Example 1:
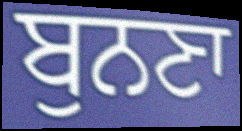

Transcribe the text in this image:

ਬੁਨਣਾ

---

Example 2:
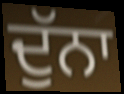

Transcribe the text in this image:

ਦੁੱਨਾ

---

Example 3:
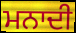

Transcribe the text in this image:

ਮਨਾਦੀ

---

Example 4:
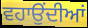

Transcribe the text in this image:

ਵਹਾਉਂਦੀਆਂ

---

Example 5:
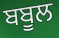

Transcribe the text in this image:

ਬਬੂਲ